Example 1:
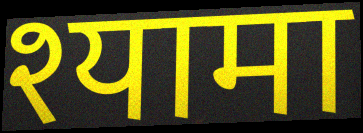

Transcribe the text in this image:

श्यामा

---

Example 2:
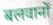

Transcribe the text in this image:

बलवानों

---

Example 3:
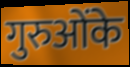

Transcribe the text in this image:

गुरुओंके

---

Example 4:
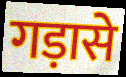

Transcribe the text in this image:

गड़ासे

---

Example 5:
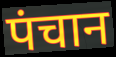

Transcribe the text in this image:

पंचान